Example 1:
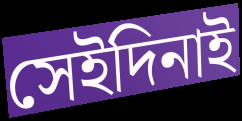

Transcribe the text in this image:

সেইদিনাই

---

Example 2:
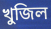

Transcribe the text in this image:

খুজিল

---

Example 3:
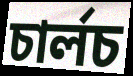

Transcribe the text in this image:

চাৰ্লচ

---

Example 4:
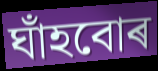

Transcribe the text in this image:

ঘাঁহবোৰ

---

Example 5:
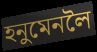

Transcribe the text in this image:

হনুমেনলৈ